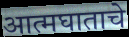
आत्मघाताचे